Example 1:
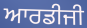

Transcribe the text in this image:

ਆਰਡੀਜੀ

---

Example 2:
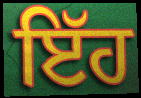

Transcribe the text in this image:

ਇੱਹ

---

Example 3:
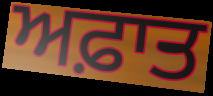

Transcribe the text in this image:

ਅਫ਼ਾਤ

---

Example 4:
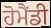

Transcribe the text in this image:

ਹੋਮੈਂਡੀ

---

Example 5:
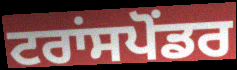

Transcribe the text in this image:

ਟਰਾਂਸਪੋਂਡਰ